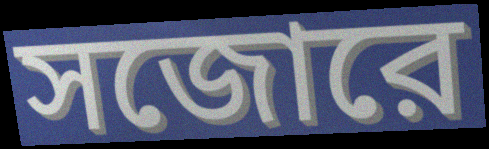
সজোরে